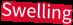
Swelling